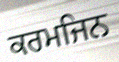
ਕਰਮਜਿਨ